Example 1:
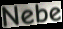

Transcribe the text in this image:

Nebe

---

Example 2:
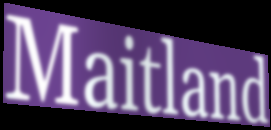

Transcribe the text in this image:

Maitland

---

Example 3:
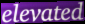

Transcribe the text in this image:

elevated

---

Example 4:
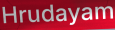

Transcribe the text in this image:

Hrudayam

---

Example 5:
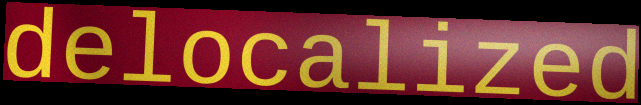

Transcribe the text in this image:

delocalized